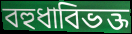
বহুধাবিভক্ত